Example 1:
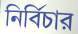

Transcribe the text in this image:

নির্বিচার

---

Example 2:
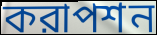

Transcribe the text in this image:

করাপশন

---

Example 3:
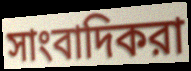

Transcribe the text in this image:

সাংবাদিকরা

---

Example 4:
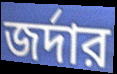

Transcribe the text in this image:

জর্দার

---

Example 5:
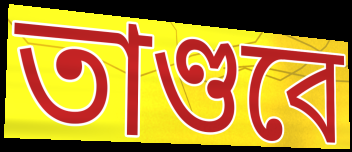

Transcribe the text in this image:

তাণ্ডবে